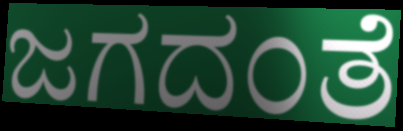
ಜಗದಂತೆ